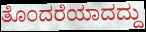
ತೊಂದರೆಯಾದದ್ದು